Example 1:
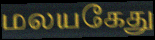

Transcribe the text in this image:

மலயகேது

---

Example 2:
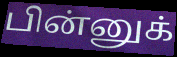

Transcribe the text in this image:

பின்னுக்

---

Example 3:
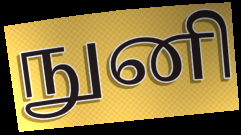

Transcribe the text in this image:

நுனி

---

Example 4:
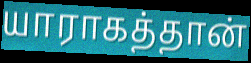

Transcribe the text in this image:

யாராகத்தான்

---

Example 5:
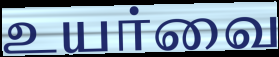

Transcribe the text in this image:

உயர்வை